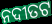
ନଦୀତଟ